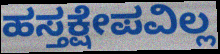
ಹಸ್ತಕ್ಷೇಪವಿಲ್ಲ